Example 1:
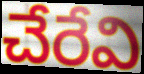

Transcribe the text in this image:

చేరేవి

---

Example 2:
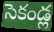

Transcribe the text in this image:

సెకండ్ల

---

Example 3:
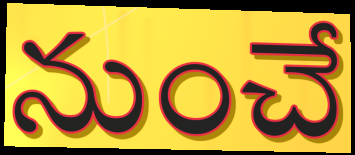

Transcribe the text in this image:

నుంచే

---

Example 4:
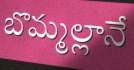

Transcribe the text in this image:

బొమ్మల్లానే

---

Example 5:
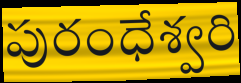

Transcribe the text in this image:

పురంధేశ్వరి